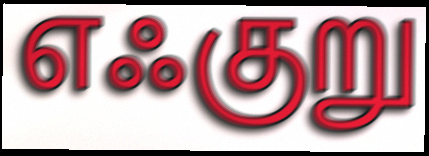
எஃகுறு